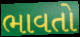
ભાવતો